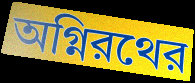
অগ্নিরথের